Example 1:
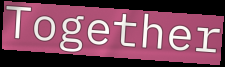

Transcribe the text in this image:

Together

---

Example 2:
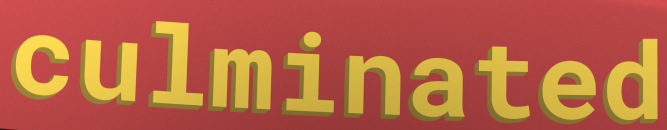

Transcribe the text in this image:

culminated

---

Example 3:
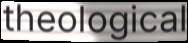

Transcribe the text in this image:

theological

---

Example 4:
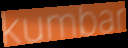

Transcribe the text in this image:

kumbar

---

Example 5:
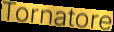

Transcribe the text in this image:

Tornatore